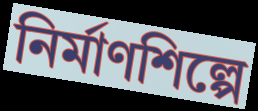
নির্মাণশিল্পে